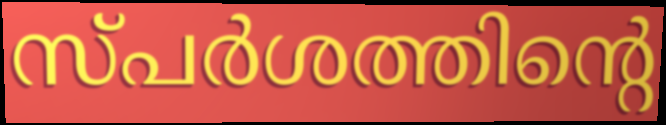
സ്പർശത്തിന്റെ